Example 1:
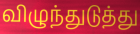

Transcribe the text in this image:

விழுந்துடுத்து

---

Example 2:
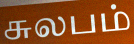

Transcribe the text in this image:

சுலபம்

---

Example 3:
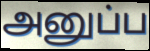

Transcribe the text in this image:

அனுப்ப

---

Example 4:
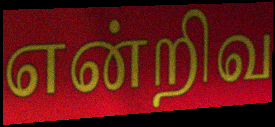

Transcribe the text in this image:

என்றிவ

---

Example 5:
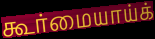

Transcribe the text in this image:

கூர்மையாய்க்